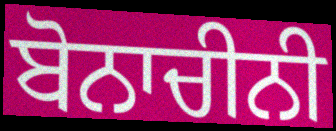
ਬੋਨਾਚੀਨੀ